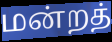
மன்றத்